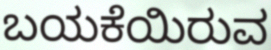
ಬಯಕೆಯಿರುವ